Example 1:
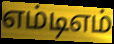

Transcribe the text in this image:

எம்டிஎம்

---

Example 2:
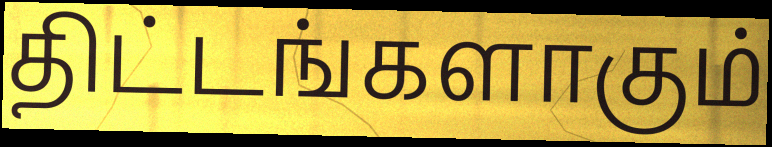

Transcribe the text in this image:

திட்டங்களாகும்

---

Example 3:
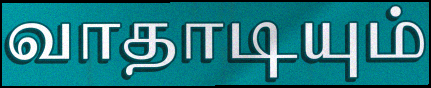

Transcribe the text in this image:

வாதாடியும்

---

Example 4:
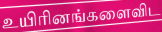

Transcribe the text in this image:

உயிரினங்களைவிட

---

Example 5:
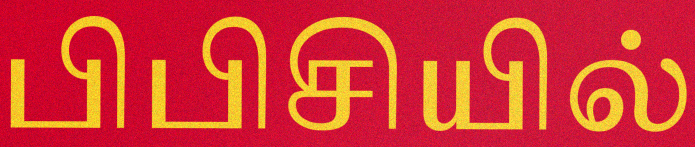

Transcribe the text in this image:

பிபிசியில்